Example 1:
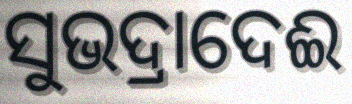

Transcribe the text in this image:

ସୁଭଦ୍ରାଦେଈ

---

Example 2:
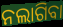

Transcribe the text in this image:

ନଲାଗିବା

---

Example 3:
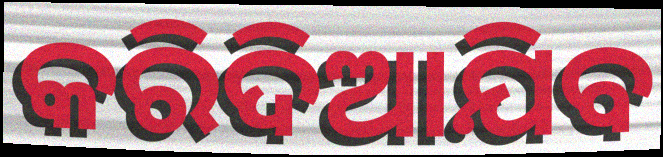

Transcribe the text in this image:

କରିଦିଆଯିବ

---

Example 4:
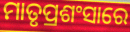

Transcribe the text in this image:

ମାତୃପ୍ରଶଂସାରେ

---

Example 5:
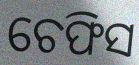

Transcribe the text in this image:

ଚେଫିସ